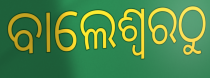
ବାଲେଶ୍ୱରଠୁ